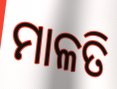
ମାଳତି